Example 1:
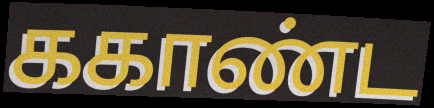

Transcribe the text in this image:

ககாண்ட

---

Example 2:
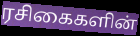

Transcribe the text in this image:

ரசிகைகளின்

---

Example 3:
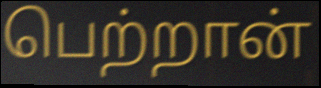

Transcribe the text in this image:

பெற்றான்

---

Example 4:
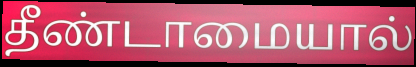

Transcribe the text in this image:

தீண்டாமையால்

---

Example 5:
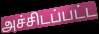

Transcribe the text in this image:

அச்சிடப்பட்ட